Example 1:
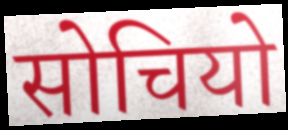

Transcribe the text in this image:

सोचियो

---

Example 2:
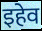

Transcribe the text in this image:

इहेव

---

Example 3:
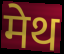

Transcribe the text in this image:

मेथ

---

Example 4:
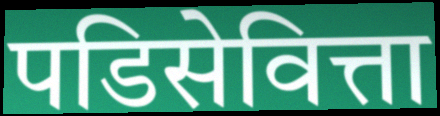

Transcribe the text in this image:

पडिसेवित्ता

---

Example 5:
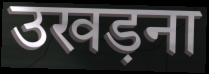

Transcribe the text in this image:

उखड़ना